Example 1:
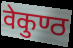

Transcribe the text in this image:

वेकुण्ठ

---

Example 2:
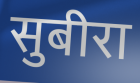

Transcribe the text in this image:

सुबीरा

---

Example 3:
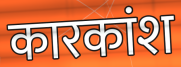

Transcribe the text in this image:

कारकांश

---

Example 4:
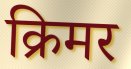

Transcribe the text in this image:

क्रिमर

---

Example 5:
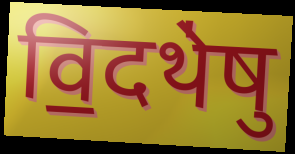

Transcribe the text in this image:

वि॒दथे॑षु